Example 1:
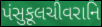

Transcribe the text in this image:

પંસુકૂલચીવરાનિ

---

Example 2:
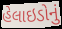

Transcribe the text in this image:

હેલાઇડોનું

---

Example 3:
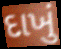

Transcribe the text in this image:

દાખું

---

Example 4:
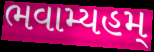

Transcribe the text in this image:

ભવામ્યહમ્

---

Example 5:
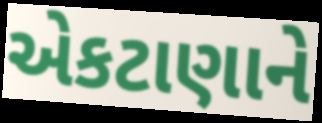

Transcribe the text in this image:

એકટાણાને